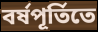
বর্ষপূর্তিতে